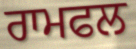
ਰਾਮਫਲ